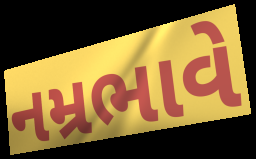
નમ્રભાવે